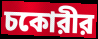
চকোরীর